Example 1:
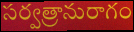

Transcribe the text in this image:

సర్వత్రానురాగం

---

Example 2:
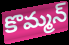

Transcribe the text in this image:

కొమ్మన్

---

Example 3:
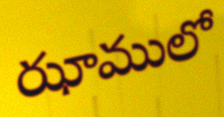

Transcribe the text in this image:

ఝాములో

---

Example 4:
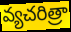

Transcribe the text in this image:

వ్యచరిత్రా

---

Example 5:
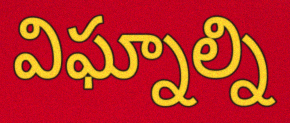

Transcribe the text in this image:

విఘ్నాల్ని